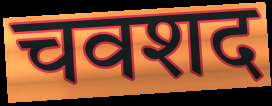
चवशद